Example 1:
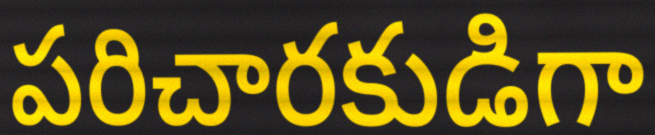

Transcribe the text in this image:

పరిచారకుడిగా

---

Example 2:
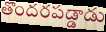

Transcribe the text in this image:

తొందరపడ్డాడు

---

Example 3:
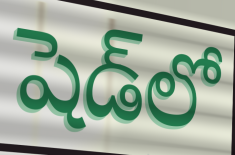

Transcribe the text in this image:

షెడ్‌లో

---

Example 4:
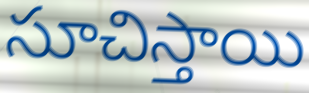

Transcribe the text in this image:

సూచిస్తాయి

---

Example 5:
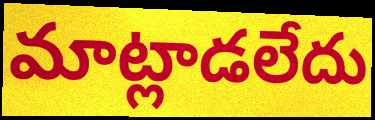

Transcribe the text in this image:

మాట్లాడలేదు